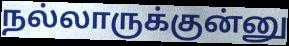
நல்லாருக்குன்னு